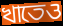
খাতেও